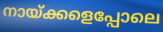
നായ്ക്കളെപ്പോലെ